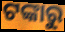
ଟଙ୍କାରୁ